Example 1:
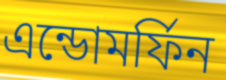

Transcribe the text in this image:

এন্ডোমর্ফিন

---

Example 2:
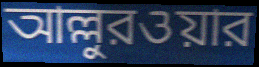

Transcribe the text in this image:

আল্লুরওয়ার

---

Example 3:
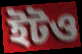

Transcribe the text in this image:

ইটও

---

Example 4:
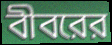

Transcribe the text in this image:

বীবরের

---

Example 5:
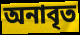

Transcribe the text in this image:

অনাবৃত